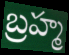
బ్రహ్మ